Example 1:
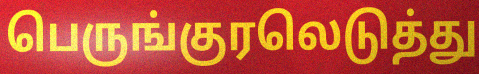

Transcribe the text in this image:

பெருங்குரலெடுத்து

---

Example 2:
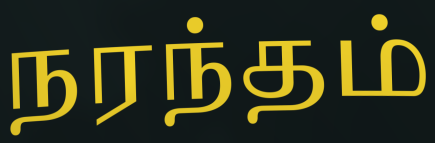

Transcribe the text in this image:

நரந்தம்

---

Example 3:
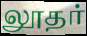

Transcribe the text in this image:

லூதர்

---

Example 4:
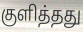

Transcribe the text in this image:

குளித்தது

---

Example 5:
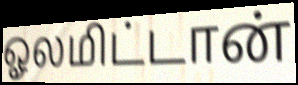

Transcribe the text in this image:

ஓலமிட்டான்